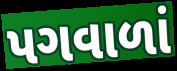
પગવાળાં